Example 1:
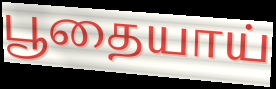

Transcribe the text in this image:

பூதையாய்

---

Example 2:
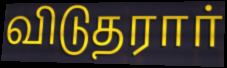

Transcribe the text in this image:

விடுதரார்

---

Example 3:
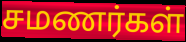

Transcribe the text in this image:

சமணர்கள்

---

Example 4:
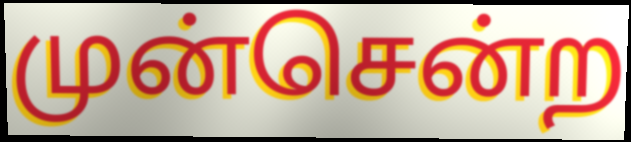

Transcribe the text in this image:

முன்சென்ற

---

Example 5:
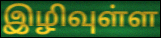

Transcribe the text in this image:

இழிவுள்ள